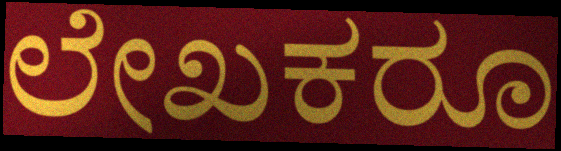
ಲೇಖಕರೂ